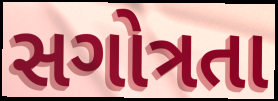
સગોત્રતા